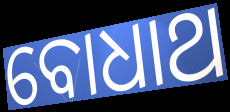
ବୋଧାଥ